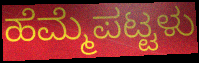
ಹೆಮ್ಮೆಪಟ್ಟಳು